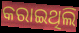
କରାଇଥିଲି